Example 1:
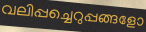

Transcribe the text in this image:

വലിപ്പച്ചെറുപ്പങ്ങളോ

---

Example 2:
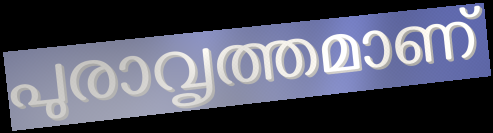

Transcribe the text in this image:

പുരാവൃത്തമാണ്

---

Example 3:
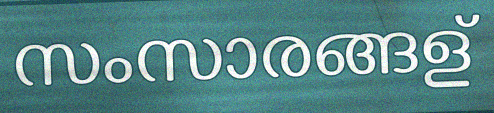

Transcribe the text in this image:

സംസാരങ്ങള്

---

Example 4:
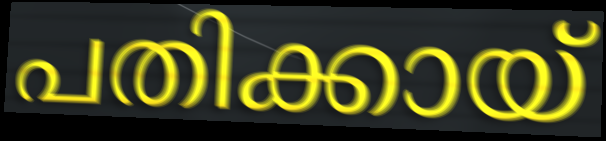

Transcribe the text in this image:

പതിക്കായ്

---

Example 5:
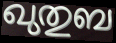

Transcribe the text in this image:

ഖുതുബ